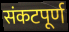
संकटपूर्ण